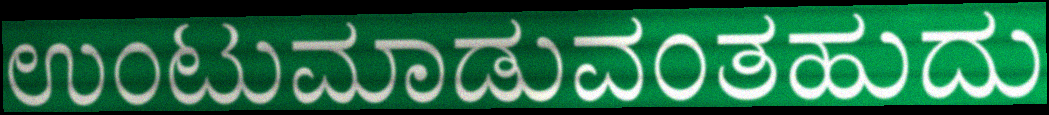
ಉಂಟುಮಾಡುವಂತಹುದು